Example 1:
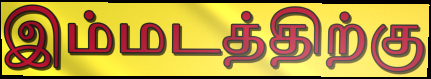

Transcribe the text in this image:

இம்மடத்திற்கு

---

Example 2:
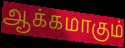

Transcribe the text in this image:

ஆக்கமாகும்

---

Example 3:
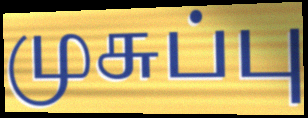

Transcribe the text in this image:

முசுப்பு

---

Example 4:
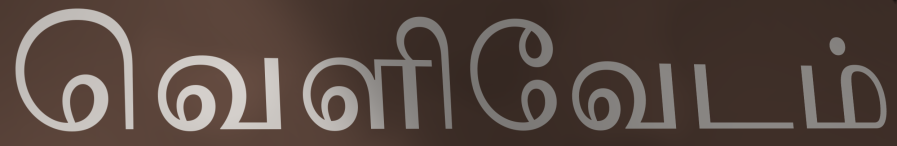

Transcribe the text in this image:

வெளிவேடம்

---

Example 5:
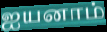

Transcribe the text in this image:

ஐயனாம்